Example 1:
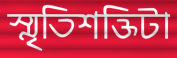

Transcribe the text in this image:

স্মৃতিশক্তিটা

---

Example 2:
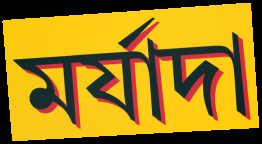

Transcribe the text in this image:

মর্যাদা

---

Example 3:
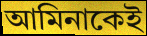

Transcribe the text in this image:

আমিনাকেই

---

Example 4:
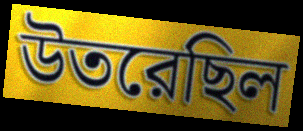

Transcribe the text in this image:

উতরেছিল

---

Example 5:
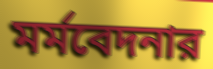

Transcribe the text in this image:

মর্মবেদনার